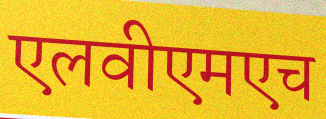
एलवीएमएच